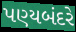
પણ્યબંદરે